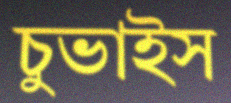
চুভাইস